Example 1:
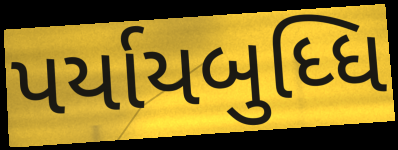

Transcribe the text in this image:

પર્યાયબુધ્ધિ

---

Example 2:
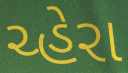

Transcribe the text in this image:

ચ્હેરા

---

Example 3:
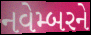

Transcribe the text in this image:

નવેમ્બરને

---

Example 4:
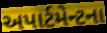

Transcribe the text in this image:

અપાર્ટમેન્ટના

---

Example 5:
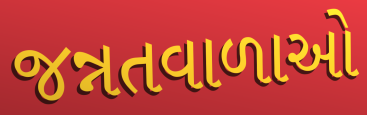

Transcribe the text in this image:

જન્નતવાળાઓ